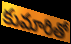
కుమారితో